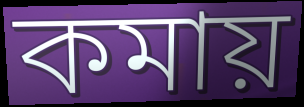
কমায়